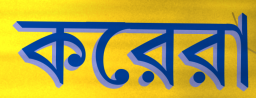
করেরা